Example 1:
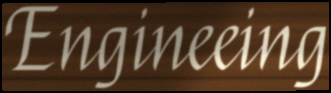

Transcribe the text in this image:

Engineeing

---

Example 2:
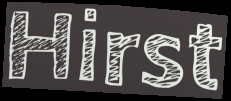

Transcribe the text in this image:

Hirst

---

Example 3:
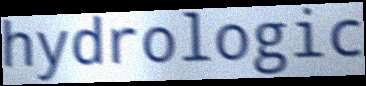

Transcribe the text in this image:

hydrologic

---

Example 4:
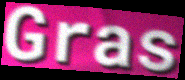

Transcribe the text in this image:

Gras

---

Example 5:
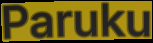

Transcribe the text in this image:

Paruku